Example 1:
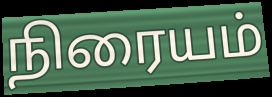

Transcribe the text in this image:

நிரையம்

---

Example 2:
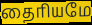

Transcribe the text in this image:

தைரியமே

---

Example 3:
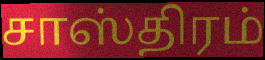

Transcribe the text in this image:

சாஸ்திரம்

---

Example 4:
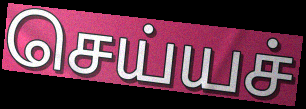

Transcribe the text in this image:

செய்யச்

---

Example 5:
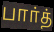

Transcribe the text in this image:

பார்த்